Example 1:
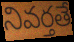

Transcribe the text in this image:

నివర్తతే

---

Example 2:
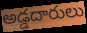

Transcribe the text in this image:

అడ్డదారులు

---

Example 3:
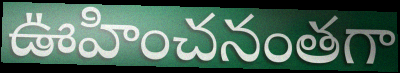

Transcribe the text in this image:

ఊహించనంతగా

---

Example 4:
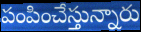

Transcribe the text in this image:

పంపించేస్తున్నారు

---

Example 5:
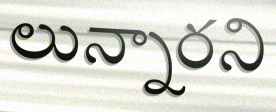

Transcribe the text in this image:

లున్నారని